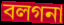
বলগনা